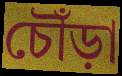
চৌঁড়া